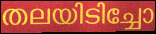
തലയിടിച്ചോ